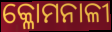
କ୍ଳୋମନାଳୀ